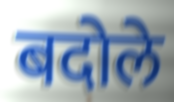
बदोले